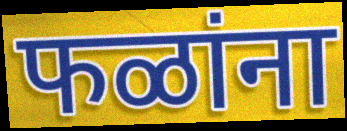
फळांना